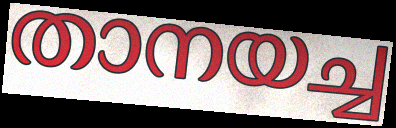
താനയച്ച